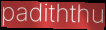
padiththu